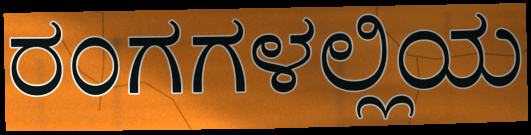
ರಂಗಗಳಲ್ಲಿಯ